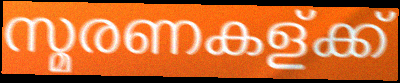
സ്മരണകള്ക്ക്